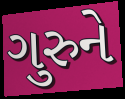
ગુરુને